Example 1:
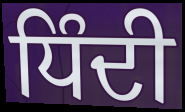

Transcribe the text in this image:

ਧਿੰਦੀ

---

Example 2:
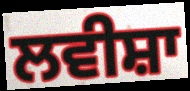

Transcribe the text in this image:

ਲਵੀਸ਼ਾ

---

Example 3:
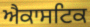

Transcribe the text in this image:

ਐਕਾਸਟਿਕ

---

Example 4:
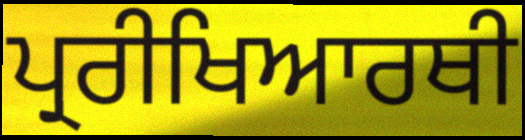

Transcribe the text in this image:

ਪ੍ਰਰੀਖਿਆਰਥੀ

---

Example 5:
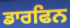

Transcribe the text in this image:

ਡਾਰਫਿਨ